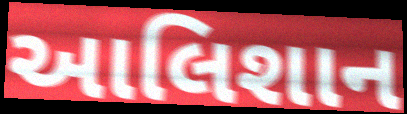
આલિશાન